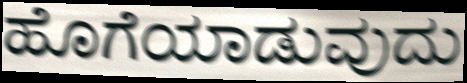
ಹೊಗೆಯಾಡುವುದು